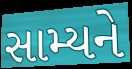
સામ્યને